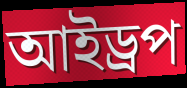
আইড্রপ